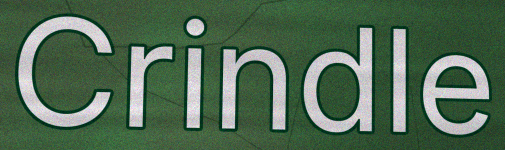
Crindle